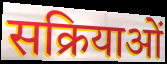
सक्रियाओं